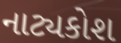
નાટ્યકોશ